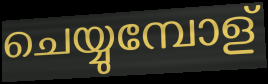
ചെയ്യുമ്പോള്